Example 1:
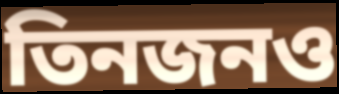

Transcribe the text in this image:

তিনজনও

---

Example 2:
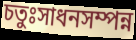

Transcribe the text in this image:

চতুঃসাধনসম্পন্ন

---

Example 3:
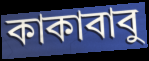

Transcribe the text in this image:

কাকাবাবু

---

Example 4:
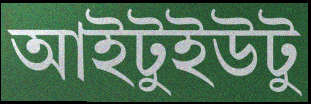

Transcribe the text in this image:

আইটুইউটু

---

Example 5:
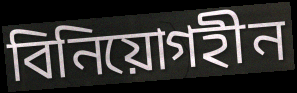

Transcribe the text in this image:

বিনিয়োগহীন